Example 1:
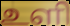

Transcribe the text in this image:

உளி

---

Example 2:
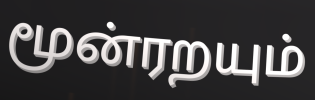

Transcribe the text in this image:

மூன்ரறயும்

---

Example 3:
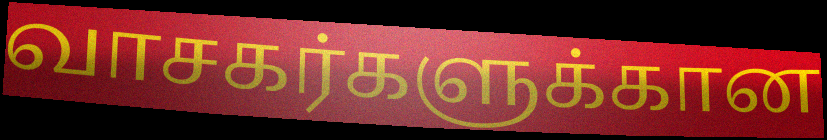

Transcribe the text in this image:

வாசகர்களுக்கான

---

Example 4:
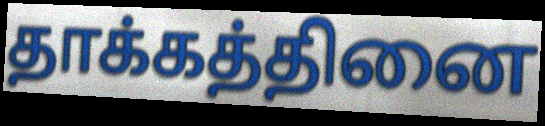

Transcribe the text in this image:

தாக்கத்தினை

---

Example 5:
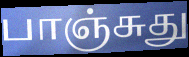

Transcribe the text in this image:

பாஞ்சுது